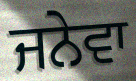
ਜਨੇਵਾ